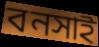
বনসাই